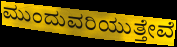
ಮುಂದುವರಿಯುತ್ತೇವೆ